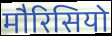
मौरिसियो